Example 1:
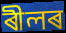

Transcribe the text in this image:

ৰীলৰ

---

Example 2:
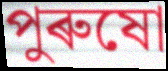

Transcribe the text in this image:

পুৰুষো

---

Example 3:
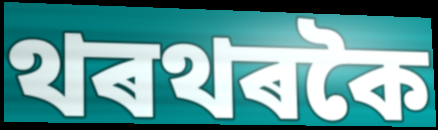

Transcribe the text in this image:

থৰথৰকৈ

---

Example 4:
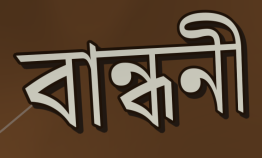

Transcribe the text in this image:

বান্ধনী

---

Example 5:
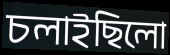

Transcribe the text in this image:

চলাইছিলো